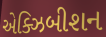
એક્ઝિબીશન